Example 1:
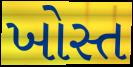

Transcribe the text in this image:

ખોસ્ત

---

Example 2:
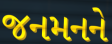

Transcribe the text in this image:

જનમનને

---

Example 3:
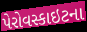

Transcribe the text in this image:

પેરોવસ્કાઇટના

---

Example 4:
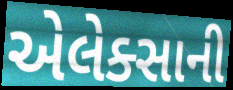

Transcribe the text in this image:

એલેક્સાની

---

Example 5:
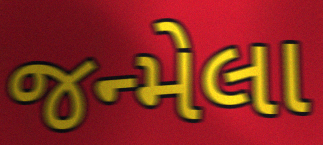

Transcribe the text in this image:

જન્મેલા